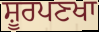
ਸ਼ੂਰਪਣਖਾ